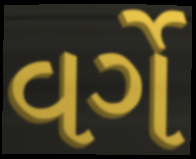
વર્ગે